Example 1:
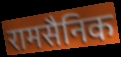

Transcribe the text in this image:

रामसैनिक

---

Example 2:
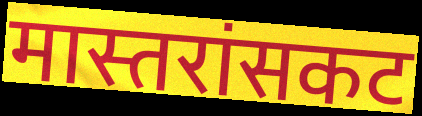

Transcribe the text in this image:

मास्तरांसकट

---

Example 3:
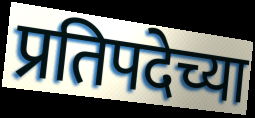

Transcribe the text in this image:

प्रतिपदेच्या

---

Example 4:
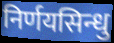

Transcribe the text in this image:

निर्णयसिन्धु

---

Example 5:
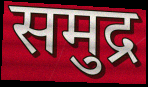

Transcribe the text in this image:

समुद्र